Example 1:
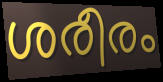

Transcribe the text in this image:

ശരീരം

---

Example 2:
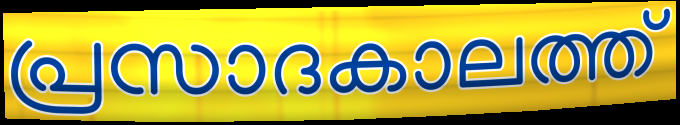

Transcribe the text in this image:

പ്രസാദകാലത്ത്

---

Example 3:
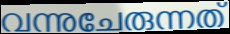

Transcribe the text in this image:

വന്നുചേരുന്നത്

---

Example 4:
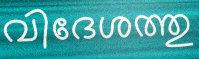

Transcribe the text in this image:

വിദേശത്തു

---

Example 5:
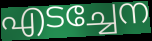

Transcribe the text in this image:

എടച്ചേന